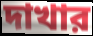
দাখার